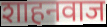
शाहनवाज